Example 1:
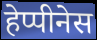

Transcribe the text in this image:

हेप्पीनेस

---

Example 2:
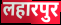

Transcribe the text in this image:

लहारपुर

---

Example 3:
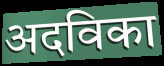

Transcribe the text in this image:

अदविका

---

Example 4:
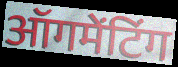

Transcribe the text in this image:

ऑगमेंटिंग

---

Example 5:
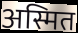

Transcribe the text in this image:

अस्मित